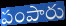
పంపారు